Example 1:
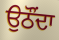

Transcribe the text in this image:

ਉਠੌਂਦਾ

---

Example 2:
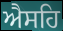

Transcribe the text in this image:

ਐਸਹਿ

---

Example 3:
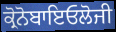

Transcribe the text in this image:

ਕ੍ਰੋਨੋਬਾਇਓਲੋਜੀ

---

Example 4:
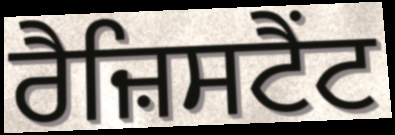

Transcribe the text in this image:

ਰੈਜ਼ਿਸਟੈਂਟ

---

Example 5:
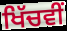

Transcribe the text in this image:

ਖਿੱਚਵੀਂ